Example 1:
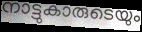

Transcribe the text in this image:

നാട്ടുകാരുടെയും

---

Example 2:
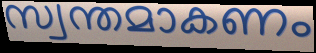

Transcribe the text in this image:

സ്വന്തമാകണം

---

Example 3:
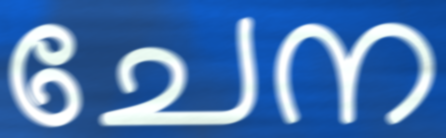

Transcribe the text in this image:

ചേന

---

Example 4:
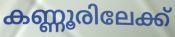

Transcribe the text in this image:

കണ്ണൂരിലേക്ക്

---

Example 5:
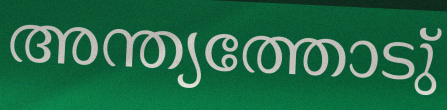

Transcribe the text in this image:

അന്ത്യത്തോടു്